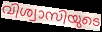
വിശ്വാസിയുടെ